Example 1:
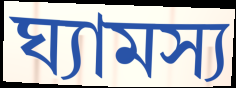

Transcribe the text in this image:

ঘ্যামস্য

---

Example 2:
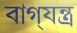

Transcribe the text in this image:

বাগ্‌যন্ত্র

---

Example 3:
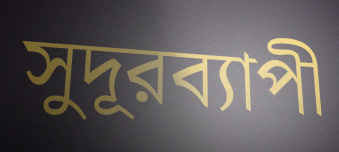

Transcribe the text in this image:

সুদূরব্যাপী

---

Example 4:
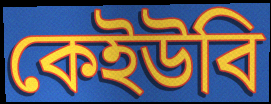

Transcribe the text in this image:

কেইউবি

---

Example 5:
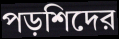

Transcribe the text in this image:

পড়শিদের